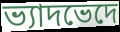
ভ্যাদভেদে